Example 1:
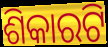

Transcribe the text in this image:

ଶିକାରଟି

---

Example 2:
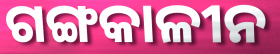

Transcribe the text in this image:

ଗଙ୍ଗକାଳୀନ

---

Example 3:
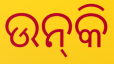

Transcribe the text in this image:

ଉନ୍‌କି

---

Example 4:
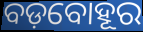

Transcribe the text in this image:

ବଡ଼ବୋହୂର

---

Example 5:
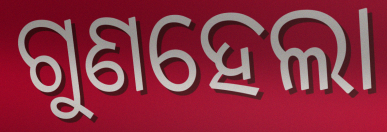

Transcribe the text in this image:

ଗୁଣହେଲା